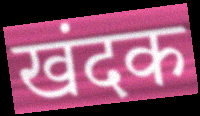
खंदक